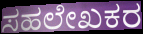
ಸಹಲೇಖಕರ